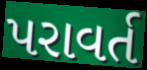
પરાવર્ત